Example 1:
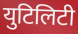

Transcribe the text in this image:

युटिलिटी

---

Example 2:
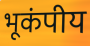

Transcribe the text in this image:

भूकंपीय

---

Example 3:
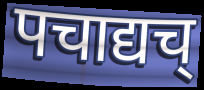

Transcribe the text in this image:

पचाद्यच्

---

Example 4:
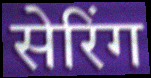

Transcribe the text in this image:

सेरिंग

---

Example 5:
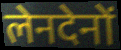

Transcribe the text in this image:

लेनदेनों